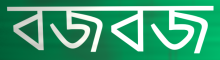
বজবজ